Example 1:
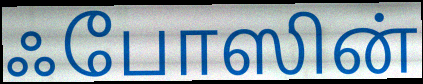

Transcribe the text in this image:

ஃபோஸின்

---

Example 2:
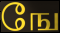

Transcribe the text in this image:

ஙே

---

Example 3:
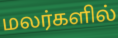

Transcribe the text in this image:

மலர்களில்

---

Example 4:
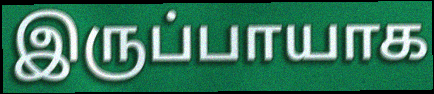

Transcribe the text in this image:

இருப்பாயாக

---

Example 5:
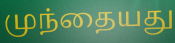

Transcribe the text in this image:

முந்தையது